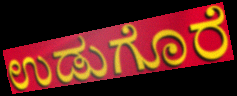
ಉಡುಗೊರೆ